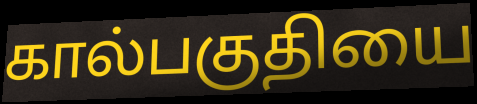
கால்பகுதியை